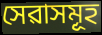
সেৱাসমূহ